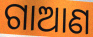
ଗାଆଣ